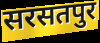
सरसतपुर